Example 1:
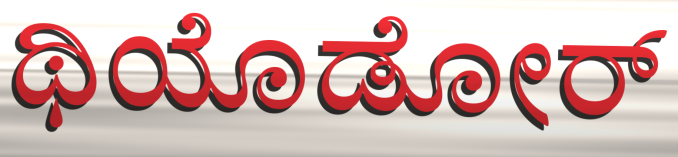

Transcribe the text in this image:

ಥಿಯೊಡೋರ್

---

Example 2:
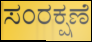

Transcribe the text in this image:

ಸಂರಕ್ಷಣೆ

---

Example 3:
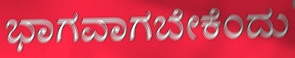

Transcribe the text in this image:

ಭಾಗವಾಗಬೇಕೆಂದು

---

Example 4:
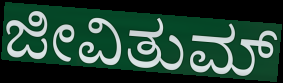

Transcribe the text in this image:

ಜೀವಿತುಮ್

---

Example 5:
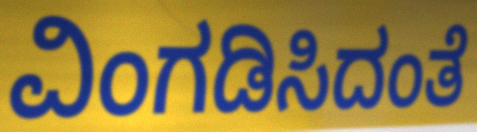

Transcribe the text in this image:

ವಿಂಗಡಿಸಿದಂತೆ